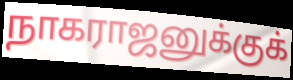
நாகராஜனுக்குக்